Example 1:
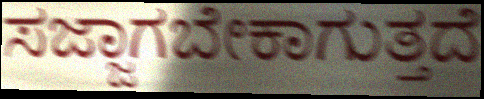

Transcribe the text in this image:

ಸಜ್ಜಾಗಬೇಕಾಗುತ್ತದೆ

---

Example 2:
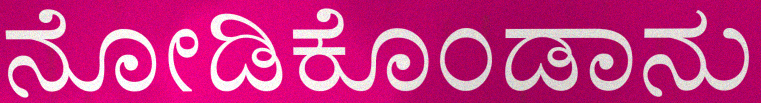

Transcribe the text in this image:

ನೋಡಿಕೊಂಡಾನು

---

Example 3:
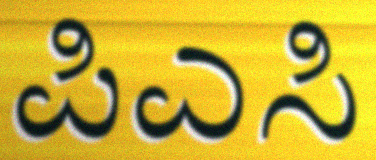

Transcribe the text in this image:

ಪಿಎಸಿ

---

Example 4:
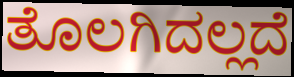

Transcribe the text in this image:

ತೊಲಗಿದಲ್ಲದೆ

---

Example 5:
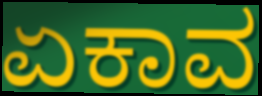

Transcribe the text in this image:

ಏಕಾವ